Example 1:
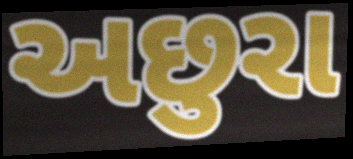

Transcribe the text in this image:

અછુરા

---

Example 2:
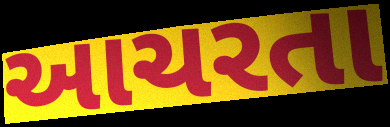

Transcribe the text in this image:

આચરતા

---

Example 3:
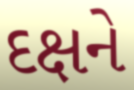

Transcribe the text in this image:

દક્ષને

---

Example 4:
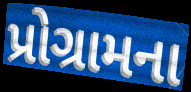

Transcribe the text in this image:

પ્રોગ્રામના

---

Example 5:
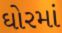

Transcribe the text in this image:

ઘોરમાં